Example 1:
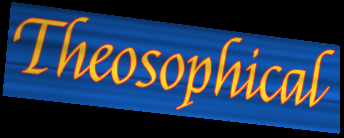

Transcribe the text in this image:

Theosophical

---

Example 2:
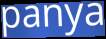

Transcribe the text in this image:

panya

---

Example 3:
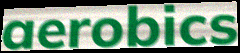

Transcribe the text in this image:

aerobics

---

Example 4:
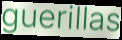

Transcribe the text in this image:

guerillas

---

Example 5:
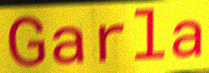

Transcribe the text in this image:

Garla